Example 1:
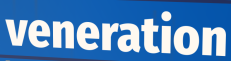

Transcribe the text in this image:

veneration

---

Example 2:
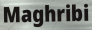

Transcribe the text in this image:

Maghribi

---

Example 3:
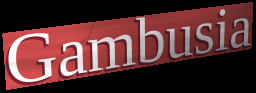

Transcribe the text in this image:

Gambusia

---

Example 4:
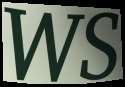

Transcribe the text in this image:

WS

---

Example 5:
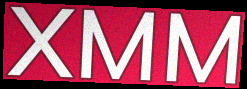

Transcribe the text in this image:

XMM